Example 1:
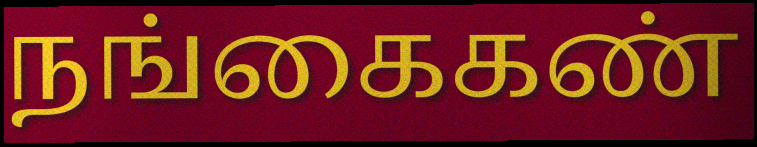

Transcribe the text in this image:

நங்கைகண்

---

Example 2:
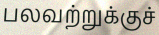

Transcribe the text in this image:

பலவற்றுக்குச்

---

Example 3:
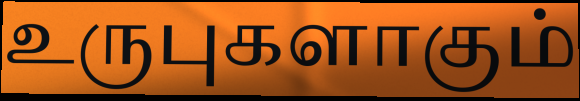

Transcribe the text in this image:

உருபுகளாகும்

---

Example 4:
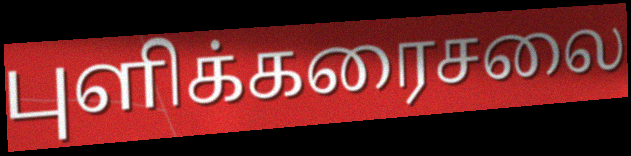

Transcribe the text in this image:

புளிக்கரைசலை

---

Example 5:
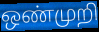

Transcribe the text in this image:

ஒண்முறி